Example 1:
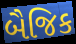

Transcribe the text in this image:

બૈજિક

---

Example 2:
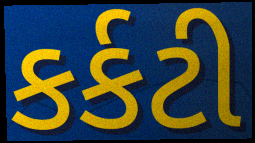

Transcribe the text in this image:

કર્કટી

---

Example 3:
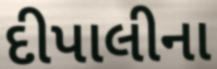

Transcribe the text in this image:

દીપાલીના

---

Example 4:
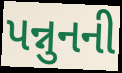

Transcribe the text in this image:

પન્નુનની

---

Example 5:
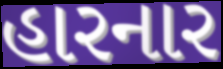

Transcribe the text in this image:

હારનાર